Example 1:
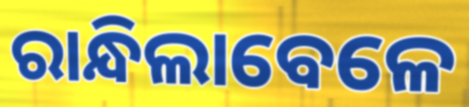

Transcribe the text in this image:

ରାନ୍ଧିଲାବେଳେ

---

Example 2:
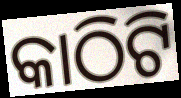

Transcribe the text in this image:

କାଠିଟି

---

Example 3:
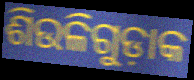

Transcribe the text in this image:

ଶିଉଳିଗୁଡ଼ାକ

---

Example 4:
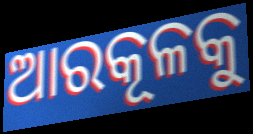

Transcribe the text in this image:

ଆରକୂଳକୁ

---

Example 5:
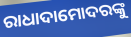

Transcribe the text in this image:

ରାଧାଦାମୋଦରଙ୍କୁ